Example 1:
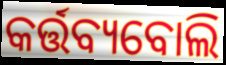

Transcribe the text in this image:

କର୍ତ୍ତବ୍ୟବୋଲି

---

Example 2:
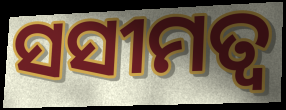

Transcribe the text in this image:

ସସୀମତ୍ୱ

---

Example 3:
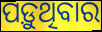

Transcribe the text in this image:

ପଡ଼ୁଥିବାର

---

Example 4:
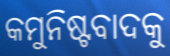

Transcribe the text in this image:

କମୁନିଷ୍ଟବାଦକୁ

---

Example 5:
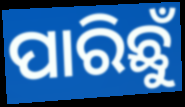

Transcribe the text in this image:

ପାରିଛୁଁ